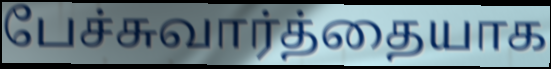
பேச்சுவார்த்தையாக